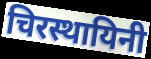
चिरस्थायिनी